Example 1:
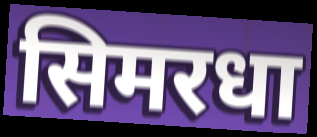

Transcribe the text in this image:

सिमरधा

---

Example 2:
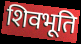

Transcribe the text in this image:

शिवभूति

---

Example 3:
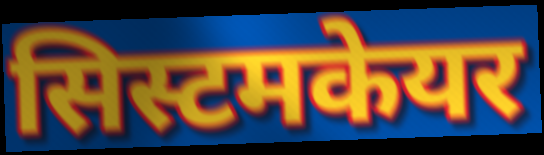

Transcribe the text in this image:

सिस्टमकेयर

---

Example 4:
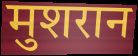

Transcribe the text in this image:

मुशरान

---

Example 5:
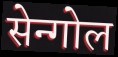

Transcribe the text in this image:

सेन्गोल